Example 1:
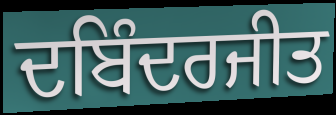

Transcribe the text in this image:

ਦਬਿੰਦਰਜੀਤ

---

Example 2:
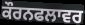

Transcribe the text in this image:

ਕੌਰਨਫਲਾਵਰ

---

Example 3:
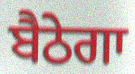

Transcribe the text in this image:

ਬੈਠੇਗਾ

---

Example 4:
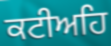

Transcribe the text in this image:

ਕਟੀਅਹਿ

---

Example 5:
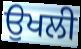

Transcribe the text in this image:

ਉਖਲੀ